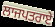
ਲਾਜਪਤਰਾਏ